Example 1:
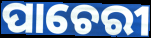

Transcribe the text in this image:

ପାଚେରୀ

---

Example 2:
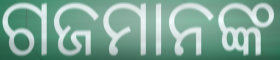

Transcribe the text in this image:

ଗଜମାନଙ୍କ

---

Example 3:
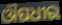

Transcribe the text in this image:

ଔଷଧୀର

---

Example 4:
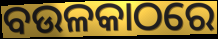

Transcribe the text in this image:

ବଉଳକାଠରେ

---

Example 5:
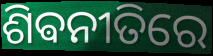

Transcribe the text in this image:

ଶିଵନୀତିରେ